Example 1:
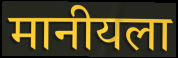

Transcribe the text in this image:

मानीयला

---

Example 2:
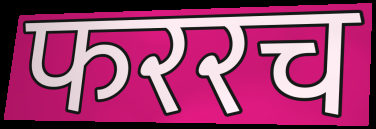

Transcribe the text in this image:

फररच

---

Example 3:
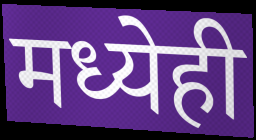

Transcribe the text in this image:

मध्येही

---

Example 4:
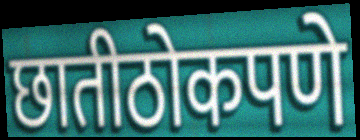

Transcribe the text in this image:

छातीठोकपणे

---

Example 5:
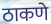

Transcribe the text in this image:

ठाकणे